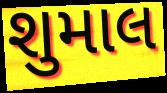
શુમાલ